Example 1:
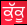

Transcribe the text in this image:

ਕੁੱਕੂ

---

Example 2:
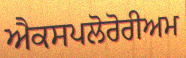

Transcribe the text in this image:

ਐਕਸਪਲੋਰੋਰੀਅਮ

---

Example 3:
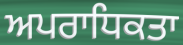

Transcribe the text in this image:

ਅਪਰਾਧਿਕਤਾ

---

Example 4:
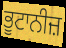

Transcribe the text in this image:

ਭੂਟਾਨੀਜ਼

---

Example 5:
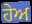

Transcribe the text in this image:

ਹੇਅ